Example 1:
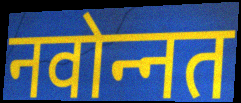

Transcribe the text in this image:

नवोन्नत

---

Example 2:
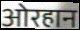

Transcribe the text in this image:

ओरहान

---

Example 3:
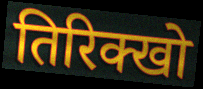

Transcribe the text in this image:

तिरिक्खो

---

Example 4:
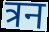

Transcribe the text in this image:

त्रन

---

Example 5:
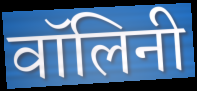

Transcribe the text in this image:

वॉलिनी